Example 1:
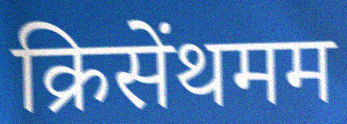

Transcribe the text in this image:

क्रिसेंथमम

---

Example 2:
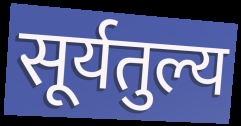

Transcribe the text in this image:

सूर्यतुल्य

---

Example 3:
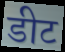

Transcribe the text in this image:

डीट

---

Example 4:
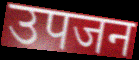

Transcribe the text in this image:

उपजन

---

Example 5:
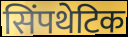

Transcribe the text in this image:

सिंपथेटिक